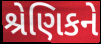
શ્રેણિકને